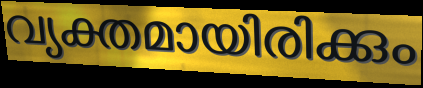
വ്യക്തമായിരിക്കും